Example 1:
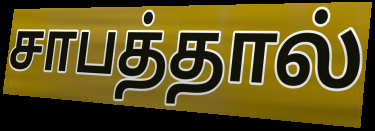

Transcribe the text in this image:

சாபத்தால்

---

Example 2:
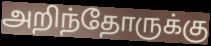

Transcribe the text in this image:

அறிந்தோருக்கு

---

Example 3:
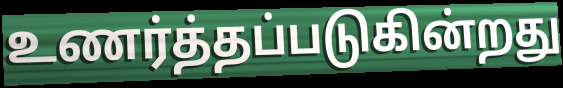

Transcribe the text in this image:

உணர்த்தப்படுகின்றது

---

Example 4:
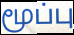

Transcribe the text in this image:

மூப்பு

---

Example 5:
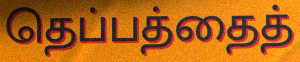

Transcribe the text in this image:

தெப்பத்தைத்